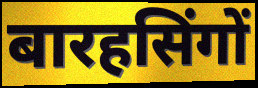
बारहसिंगों